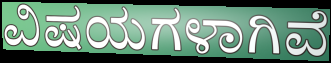
ವಿಷಯಗಳಾಗಿವೆ